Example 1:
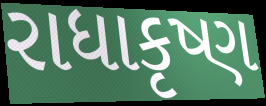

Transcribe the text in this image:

રાધાકૃષ્ણ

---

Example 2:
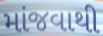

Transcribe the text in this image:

માંજવાથી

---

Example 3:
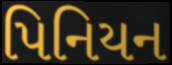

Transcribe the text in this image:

પિનિયન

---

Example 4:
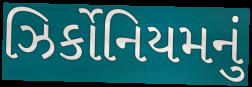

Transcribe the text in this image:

ઝિર્કોનિયમનું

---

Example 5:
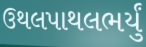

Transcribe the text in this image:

ઉથલપાથલભર્યું